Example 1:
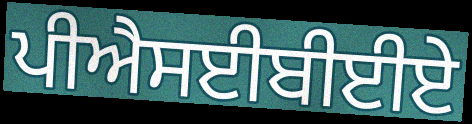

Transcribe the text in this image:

ਪੀਐਸਈਬੀਈਏ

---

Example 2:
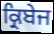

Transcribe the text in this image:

ਕ੍ਰਿਬੇਜ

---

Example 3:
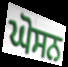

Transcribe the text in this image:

ਘੋਸਨ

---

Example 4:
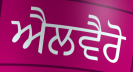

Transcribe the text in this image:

ਐਲਵੈਰੋ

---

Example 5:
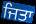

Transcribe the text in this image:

ਜਿਤਾ